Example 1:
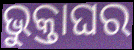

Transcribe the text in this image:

ଭୁକ୍ତାଘର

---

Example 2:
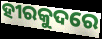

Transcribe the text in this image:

ହୀରକୁଦରେ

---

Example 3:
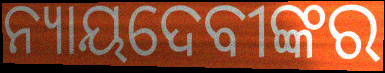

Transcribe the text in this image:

ନ୍ୟାୟଦେବୀଙ୍କର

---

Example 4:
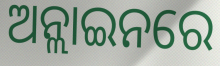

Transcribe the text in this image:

ଅନ୍ଲାଇନରେ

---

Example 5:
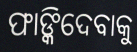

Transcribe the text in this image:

ଫାଙ୍କିଦେବାକୁ